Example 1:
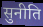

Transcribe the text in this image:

सुनीति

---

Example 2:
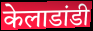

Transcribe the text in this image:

केलाडांडी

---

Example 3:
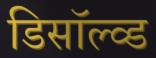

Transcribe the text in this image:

डिसॉल्व्ड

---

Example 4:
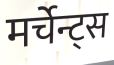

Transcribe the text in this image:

मर्चेन्ट्स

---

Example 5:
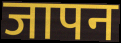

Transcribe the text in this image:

जापन